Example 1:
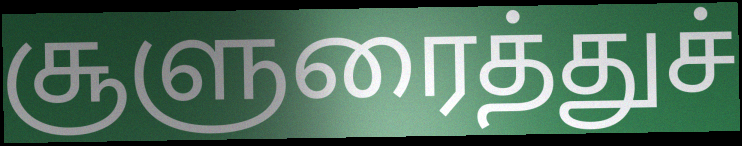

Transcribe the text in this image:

சூளுரைத்துச்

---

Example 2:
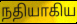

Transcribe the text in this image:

நதியாகிய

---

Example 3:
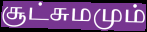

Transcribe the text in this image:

சூட்சுமமும்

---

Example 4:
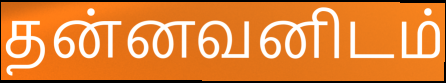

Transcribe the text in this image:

தன்னவனிடம்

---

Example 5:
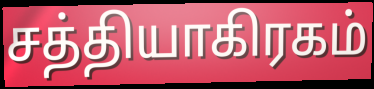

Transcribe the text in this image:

சத்தியாகிரகம்